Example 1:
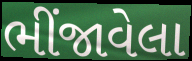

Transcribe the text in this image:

ભીંજાવેલા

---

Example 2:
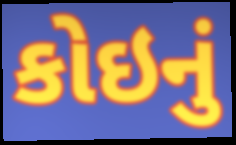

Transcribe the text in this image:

કોઇનું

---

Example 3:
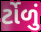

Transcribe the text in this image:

ર્ટોળું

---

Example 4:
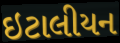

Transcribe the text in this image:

ઇટાલીયન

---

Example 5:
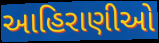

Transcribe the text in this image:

આહિરાણીઓ